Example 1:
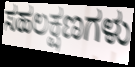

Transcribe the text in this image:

ಸಹಲಕ್ಷಣಗಳು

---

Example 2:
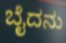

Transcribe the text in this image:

ಬೈದನು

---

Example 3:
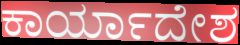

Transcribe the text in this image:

ಕಾರ್ಯಾದೇಶ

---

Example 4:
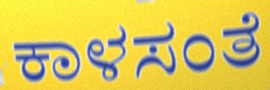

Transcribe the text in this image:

ಕಾಳಸಂತೆ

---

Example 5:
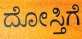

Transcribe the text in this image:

ದೋಸ್ತಿಗೆ